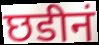
छडीनं